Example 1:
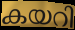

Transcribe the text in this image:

കയറി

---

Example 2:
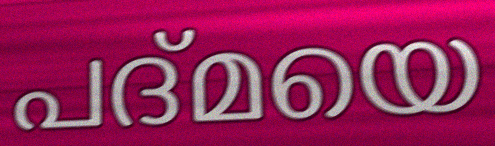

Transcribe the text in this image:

പദ്മയെ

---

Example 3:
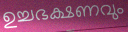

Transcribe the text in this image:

ഉച്ചഭക്ഷണവും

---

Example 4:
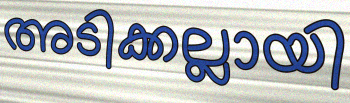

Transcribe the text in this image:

അടിക്കല്ലായി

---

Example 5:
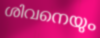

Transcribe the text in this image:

ശിവനെയും